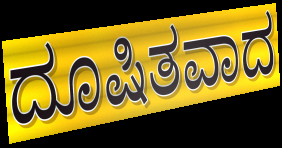
ದೂಷಿತವಾದ